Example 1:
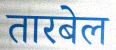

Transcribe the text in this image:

तारबेल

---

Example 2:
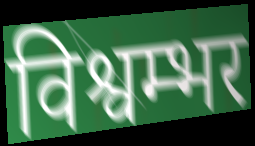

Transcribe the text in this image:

विश्वम्भर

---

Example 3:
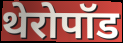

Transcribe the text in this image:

थेरोपॉड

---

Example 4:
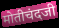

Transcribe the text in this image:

मोतीचंदजी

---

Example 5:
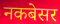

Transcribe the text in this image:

नकबेसर